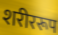
शरीररूप